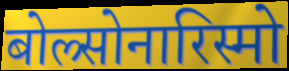
बोल्सोनारिस्मो